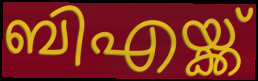
ബിഎയ്ക്ക്